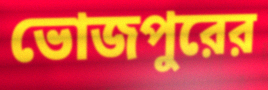
ভোজপুরের